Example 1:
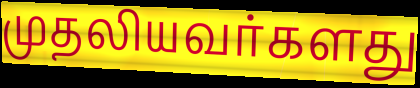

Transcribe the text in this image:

முதலியவர்களது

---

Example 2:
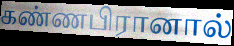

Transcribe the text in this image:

கண்ணபிரானால்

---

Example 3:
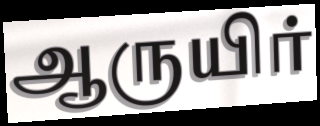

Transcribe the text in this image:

ஆருயிர்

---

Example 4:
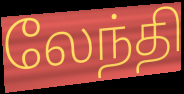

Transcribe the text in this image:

லேந்தி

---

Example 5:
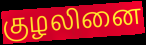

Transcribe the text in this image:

குழலினை